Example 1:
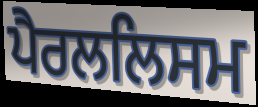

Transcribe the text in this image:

ਪੈਰਲਲਿਸਮ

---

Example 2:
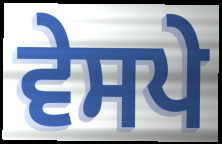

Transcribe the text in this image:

ਵੇਸਪੇ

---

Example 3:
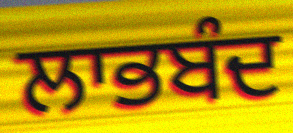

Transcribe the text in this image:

ਲਾਭਬੰਦ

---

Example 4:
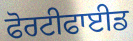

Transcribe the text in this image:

ਫੋਰਟੀਫਾਈਡ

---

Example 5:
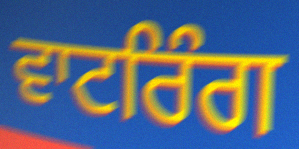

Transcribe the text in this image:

ਵਾਟਰਿੰਗ